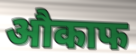
औकाफ